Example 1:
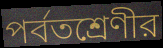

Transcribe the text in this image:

পর্বতশ্রেণীর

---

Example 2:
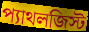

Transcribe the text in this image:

প্যাথলজিস্ট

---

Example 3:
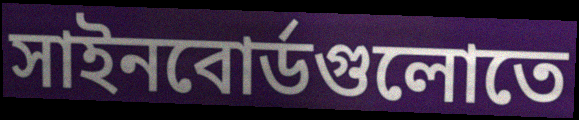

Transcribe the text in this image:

সাইনবোর্ডগুলোতে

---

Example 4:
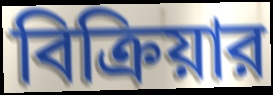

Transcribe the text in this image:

বিক্রিয়ার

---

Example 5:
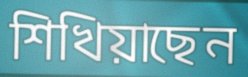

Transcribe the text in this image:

শিখিয়াছেন